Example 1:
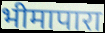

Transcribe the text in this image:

भीमापारा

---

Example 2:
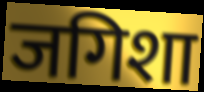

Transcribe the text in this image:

जगिशा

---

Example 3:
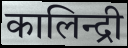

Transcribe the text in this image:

कालिन्द्री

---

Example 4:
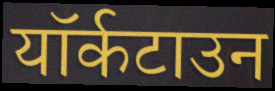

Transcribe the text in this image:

यॉर्कटाउन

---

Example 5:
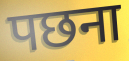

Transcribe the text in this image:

पछना